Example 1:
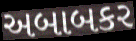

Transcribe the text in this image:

અબાબકર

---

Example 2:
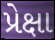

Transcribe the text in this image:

પ્રેક્ષા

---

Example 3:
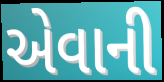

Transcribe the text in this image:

એવાની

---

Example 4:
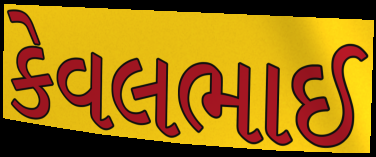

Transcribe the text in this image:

કેવલભાઈ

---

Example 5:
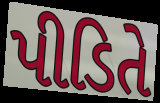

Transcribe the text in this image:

પીડિતે